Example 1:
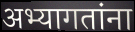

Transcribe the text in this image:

अभ्यागतांना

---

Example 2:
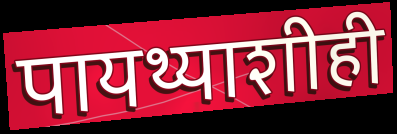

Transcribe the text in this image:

पायथ्याशीही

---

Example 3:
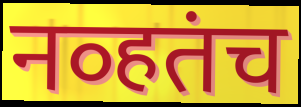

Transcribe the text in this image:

नव्हतंच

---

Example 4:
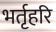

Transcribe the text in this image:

भर्तृहरि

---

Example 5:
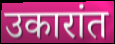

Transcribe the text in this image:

उकारांत